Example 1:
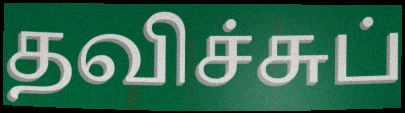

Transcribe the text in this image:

தவிச்சுப்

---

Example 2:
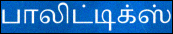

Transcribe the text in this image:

பாலிட்டிக்ஸ்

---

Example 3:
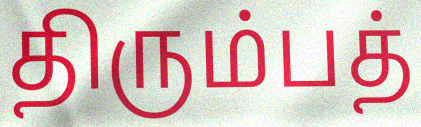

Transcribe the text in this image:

திரும்பத்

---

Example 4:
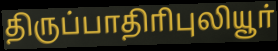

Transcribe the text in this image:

திருப்பாதிரிபுலியூர்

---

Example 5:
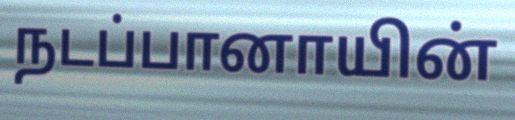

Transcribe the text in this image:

நடப்பானாயின்